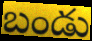
బండు